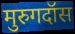
मुरुगदॉस